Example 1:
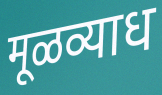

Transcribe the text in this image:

मूळव्याध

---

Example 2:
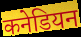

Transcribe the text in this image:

कनेडियन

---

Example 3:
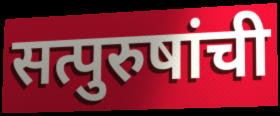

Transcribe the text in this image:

सत्पुरुषांची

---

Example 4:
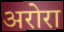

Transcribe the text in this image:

अरोरा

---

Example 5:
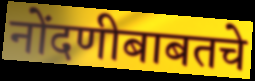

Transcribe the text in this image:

नोंदणीबाबतचे